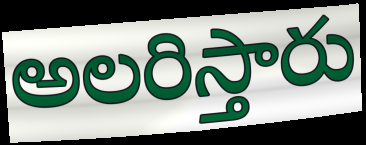
అలరిస్తారు